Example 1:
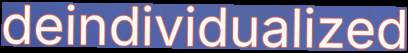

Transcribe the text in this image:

deindividualized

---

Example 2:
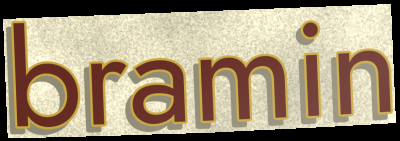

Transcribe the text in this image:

bramin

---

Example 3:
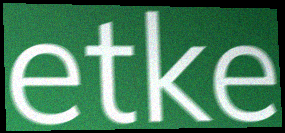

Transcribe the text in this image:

etke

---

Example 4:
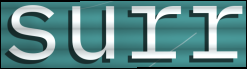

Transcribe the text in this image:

surr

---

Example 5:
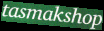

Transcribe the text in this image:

tasmakshop